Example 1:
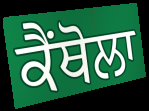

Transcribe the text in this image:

ਕੈਂਥੋਲਾ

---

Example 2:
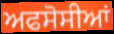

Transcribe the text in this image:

ਅਫਸੋਸੀਆਂ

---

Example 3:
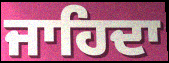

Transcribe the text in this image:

ਜਾਹਿਦਾ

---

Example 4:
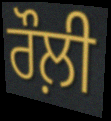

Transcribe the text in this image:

ਰੌਲ਼ੀ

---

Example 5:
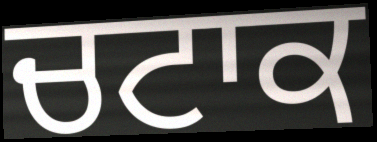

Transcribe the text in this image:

ਚਟਾਕ